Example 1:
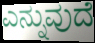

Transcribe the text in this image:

ಎನ್ನುವುದೆ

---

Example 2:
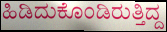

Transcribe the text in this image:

ಹಿಡಿದುಕೊಂಡಿರುತ್ತಿದ್ದ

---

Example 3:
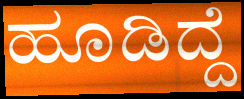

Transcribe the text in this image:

ಹೂಡಿದ್ದೆ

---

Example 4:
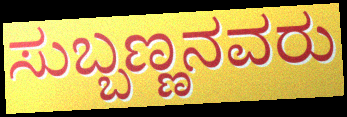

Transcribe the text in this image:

ಸುಬ್ಬಣ್ಣನವರು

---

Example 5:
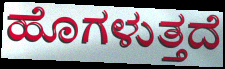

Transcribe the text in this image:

ಹೊಗಳುತ್ತದೆ